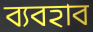
ব্যবহাব